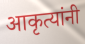
आकृत्यांनी